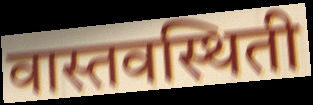
वास्तवस्थिती